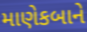
માણેકબાને